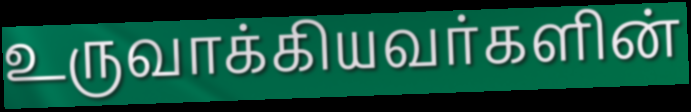
உருவாக்கியவர்களின்